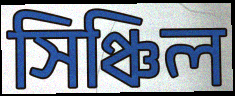
সিঞ্চিল